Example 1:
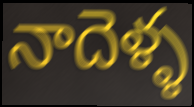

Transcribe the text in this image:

నాదెళ్ళ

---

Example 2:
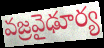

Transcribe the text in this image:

వజ్రవైఢూర్య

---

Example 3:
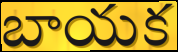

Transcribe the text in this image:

బాయక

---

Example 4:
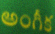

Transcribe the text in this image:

అంగీక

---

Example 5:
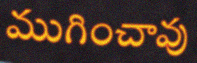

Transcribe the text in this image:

ముగించావు